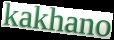
kakhano